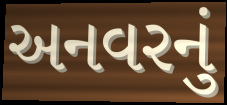
અનવરનું